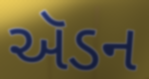
ઍડન